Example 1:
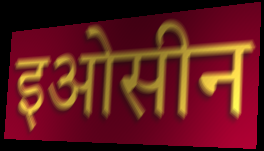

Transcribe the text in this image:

इओसीन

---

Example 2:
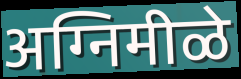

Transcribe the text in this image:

अग्निमीळे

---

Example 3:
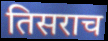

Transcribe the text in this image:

तिसराच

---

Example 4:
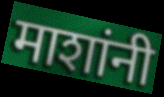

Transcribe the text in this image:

माशांनी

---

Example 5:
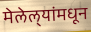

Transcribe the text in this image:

मेलेल्यांमधून